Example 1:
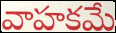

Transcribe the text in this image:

వాహకమే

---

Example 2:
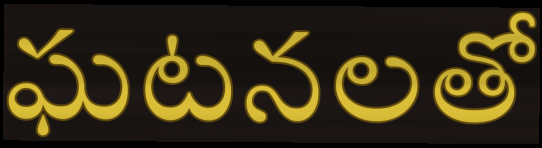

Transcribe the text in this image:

ఘటనలతో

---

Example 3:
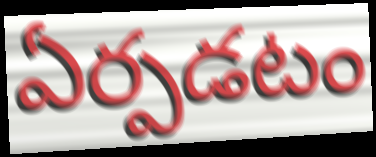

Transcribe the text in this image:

ఏర్పడటం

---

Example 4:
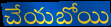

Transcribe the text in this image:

చేయబోయి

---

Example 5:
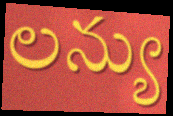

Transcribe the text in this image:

లన్యు